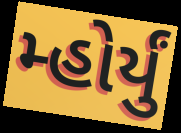
મ્હોર્યું